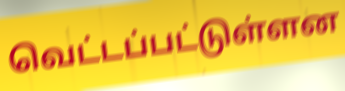
வெட்டப்பட்டுள்ளன